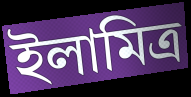
ইলামিত্র